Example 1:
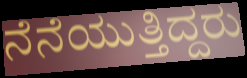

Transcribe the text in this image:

ನೆನೆಯುತ್ತಿದ್ದರು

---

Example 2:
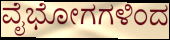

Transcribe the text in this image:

ವೈಭೋಗಗಳಿಂದ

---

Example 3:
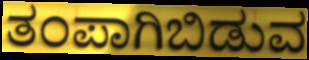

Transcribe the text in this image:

ತಂಪಾಗಿಬಿಡುವ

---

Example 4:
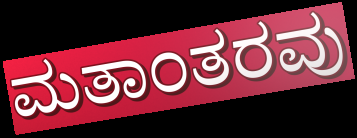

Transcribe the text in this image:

ಮತಾಂತರವು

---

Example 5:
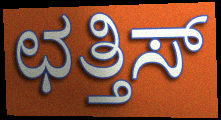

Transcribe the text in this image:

ಛತ್ತಿಸ್